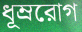
ধূম্ররোগ